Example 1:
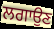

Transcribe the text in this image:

ਲਗਾਉਣ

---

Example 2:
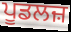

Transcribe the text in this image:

ਪੂਡਲਜ਼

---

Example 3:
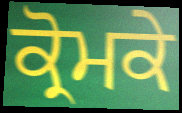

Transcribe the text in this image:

ਕ੍ਰੋਮਕੇ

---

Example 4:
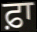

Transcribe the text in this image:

ਫ਼ਾ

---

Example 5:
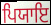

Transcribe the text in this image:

ਪਿਯਾਇ